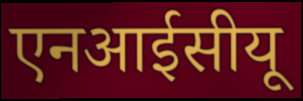
एनआईसीयू